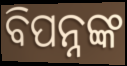
ବିପନ୍ନଙ୍କ